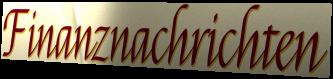
Finanznachrichten